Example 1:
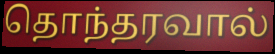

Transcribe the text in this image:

தொந்தரவால்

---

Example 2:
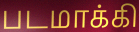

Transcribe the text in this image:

படமாக்கி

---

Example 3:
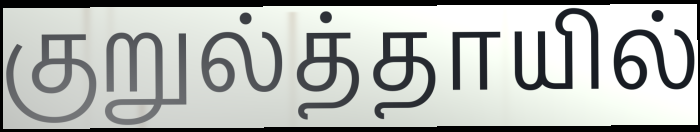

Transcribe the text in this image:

குறுல்த்தாயில்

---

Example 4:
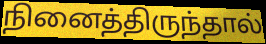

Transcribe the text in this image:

நினைத்திருந்தால்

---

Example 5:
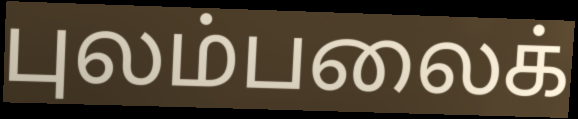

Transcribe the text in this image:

புலம்பலைக்